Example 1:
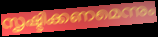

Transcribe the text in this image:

സൃഷ്ടിക്കണമെന്നും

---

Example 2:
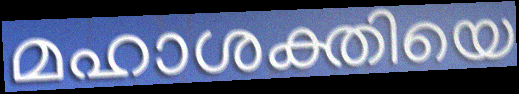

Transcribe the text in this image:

മഹാശക്തിയെ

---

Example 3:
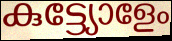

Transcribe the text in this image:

കുട്ട്യോളേം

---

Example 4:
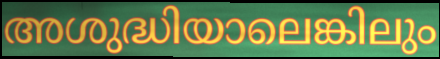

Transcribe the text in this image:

അശുദ്ധിയാലെങ്കിലും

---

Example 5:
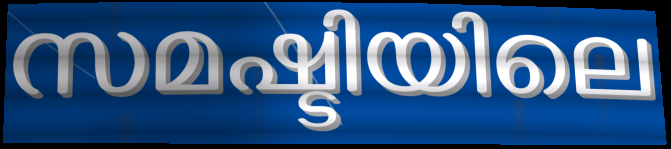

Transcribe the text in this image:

സമഷ്ടിയിലെ